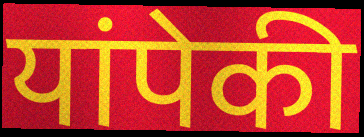
यांपेकी